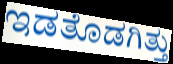
ಇಡತೊಡಗಿತ್ತು